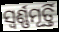
ସ୍ଵର୍ଣ୍ଣମୂର୍ତ୍ତି